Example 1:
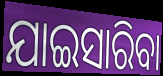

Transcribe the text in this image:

ଯାଇସାରିବା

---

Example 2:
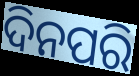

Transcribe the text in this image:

ଦିନପରି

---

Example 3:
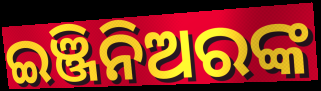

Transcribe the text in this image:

ଇଞ୍ଜିନିଅରଙ୍କ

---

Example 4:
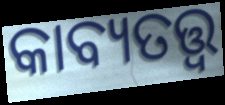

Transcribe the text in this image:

କାବ୍ୟତତ୍ତ୍ୱ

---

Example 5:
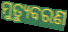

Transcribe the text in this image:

ମୁତ୍ୟୁବରଣ